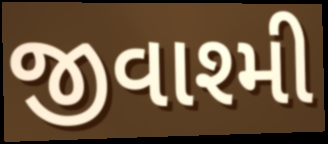
જીવાશ્મી